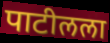
पाटीलला